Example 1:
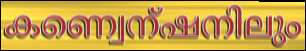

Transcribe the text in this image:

കണ്വെന്ഷനിലും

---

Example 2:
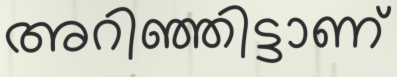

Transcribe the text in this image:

അറിഞ്ഞിട്ടാണ്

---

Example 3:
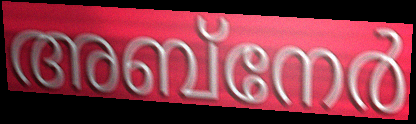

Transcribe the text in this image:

അബ്നേർ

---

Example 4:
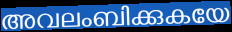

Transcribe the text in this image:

അവലംബിക്കുകയേ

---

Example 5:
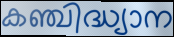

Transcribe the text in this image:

കഞ്ചിദ്ധ്യാന